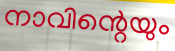
നാവിന്റെയും